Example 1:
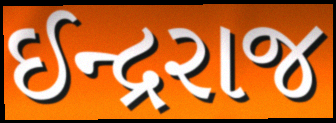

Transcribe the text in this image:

ઈન્દ્રરાજ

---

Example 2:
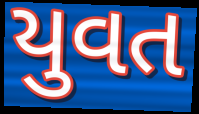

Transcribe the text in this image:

યુવત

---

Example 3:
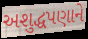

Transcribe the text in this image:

અશુદ્ધપણાને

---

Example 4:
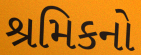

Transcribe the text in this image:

શ્રમિકનો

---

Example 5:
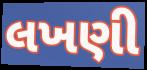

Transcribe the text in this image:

લખણી